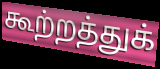
கூற்றத்துக்